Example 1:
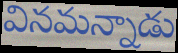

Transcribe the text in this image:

వినమన్నాడు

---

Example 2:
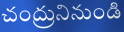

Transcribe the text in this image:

చంద్రునినుండి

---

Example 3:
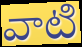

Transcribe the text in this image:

వాటి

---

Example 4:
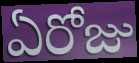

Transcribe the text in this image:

ఏరోజు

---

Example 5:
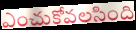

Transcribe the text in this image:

ఎంచుకోవలసింది